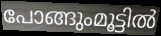
പോങ്ങുംമൂട്ടിൽ